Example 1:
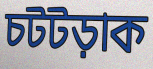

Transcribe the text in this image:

চটটড়াক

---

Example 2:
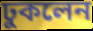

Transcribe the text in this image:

ঢুকলেন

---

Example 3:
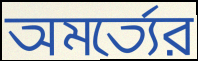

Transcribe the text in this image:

অমর্ত্যের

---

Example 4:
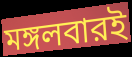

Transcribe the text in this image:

মঙ্গলবারই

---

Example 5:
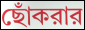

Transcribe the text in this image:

ছোঁকরার